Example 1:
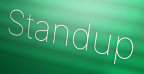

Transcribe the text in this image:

Standup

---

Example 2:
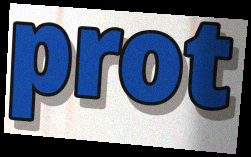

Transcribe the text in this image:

prot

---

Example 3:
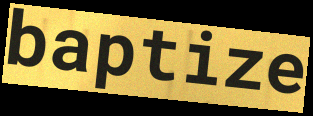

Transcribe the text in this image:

baptize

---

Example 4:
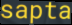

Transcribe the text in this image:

sapta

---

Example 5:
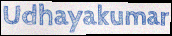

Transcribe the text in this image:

Udhayakumar